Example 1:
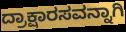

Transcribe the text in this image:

ದ್ರಾಕ್ಷಾರಸವನ್ನಾಗಿ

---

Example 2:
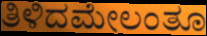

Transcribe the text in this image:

ತಿಳಿದಮೇಲಂತೂ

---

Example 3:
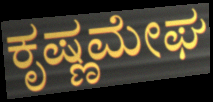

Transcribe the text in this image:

ಕೃಷ್ಣಮೇಘ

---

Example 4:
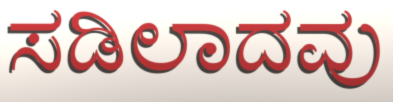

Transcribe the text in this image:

ಸಡಿಲಾದವು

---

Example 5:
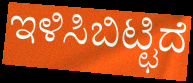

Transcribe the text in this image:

ಇಳಿಸಿಬಿಟ್ಟಿದೆ